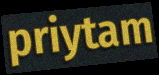
priytam